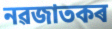
নৱজাতকৰ